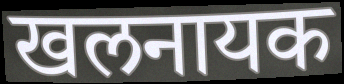
खलनायक